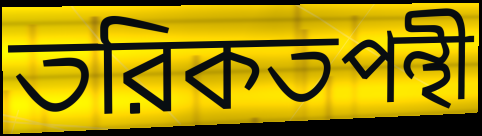
তরিকতপন্থী